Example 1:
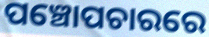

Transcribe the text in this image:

ପଞ୍ଚୋପଚାରରେ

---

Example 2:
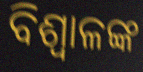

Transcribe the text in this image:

ବିଶ୍ୱାଳଙ୍କ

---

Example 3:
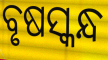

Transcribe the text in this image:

ବୃଷସ୍କନ୍ଧ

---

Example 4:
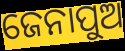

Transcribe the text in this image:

ଜେନାପୁଅ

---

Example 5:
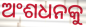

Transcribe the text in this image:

ଅଂଶଧନକୁ